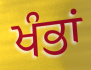
ਖੰਭਾਂ